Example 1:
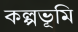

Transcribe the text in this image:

কল্পভূমি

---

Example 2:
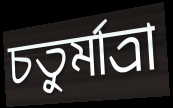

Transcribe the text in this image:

চতুর্মাত্রা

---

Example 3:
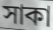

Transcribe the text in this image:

সাকা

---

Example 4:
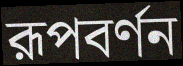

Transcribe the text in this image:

রূপবর্ণন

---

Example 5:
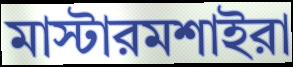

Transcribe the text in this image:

মাস্টারমশাইরা